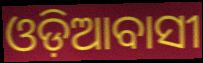
ଓଡ଼ିଆବାସୀ